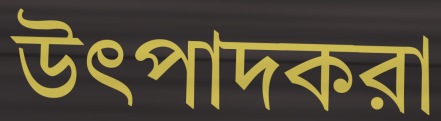
উৎপাদকরা